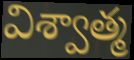
విశ్వాత్మ